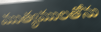
ముత్యములతోను